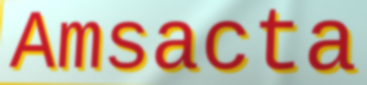
Amsacta